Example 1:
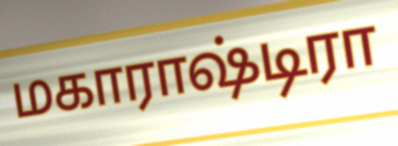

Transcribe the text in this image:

மகாராஷ்டிரா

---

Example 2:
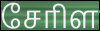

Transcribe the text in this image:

சேரிள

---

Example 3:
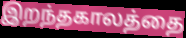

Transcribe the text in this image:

இறந்தகாலத்தை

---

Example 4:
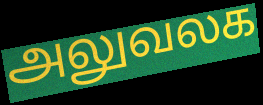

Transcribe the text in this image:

அலுவலக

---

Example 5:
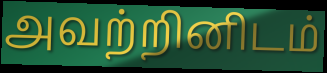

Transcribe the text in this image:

அவற்றினிடம்